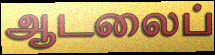
ஆடலைப்